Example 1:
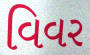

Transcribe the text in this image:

વિવર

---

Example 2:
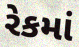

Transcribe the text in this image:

રેકમાં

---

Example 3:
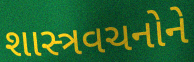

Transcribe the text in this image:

શાસ્ત્રવચનોને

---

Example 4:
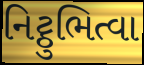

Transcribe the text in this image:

નિટ્ઠુભિત્વા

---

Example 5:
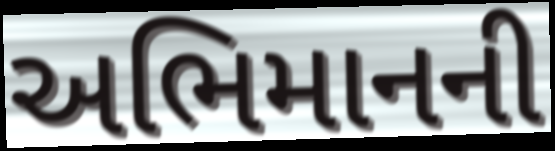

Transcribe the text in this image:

અભિમાનની